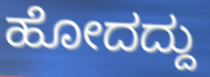
ಹೋದದ್ದು